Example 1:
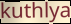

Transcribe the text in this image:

kuthlya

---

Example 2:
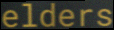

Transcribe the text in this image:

elders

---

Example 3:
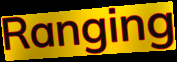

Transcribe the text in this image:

Ranging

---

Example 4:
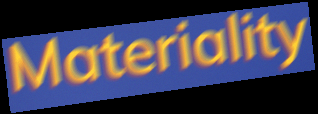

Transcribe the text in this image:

Materiality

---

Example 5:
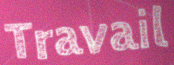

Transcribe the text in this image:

Travail